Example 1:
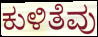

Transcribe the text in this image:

ಕುಳಿತೆವು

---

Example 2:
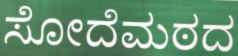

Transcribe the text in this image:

ಸೋದೆಮಠದ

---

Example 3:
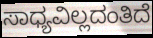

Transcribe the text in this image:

ಸಾಧ್ಯವಿಲ್ಲದಂತಿದೆ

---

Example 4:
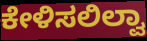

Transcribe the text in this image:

ಕೇಳಿಸಲಿಲ್ವಾ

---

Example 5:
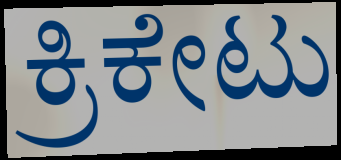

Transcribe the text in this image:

ಕ್ರಿಕೇಟು